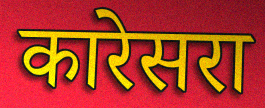
कारेसरा